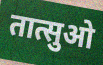
तात्सुओ